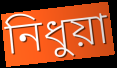
নিধুয়া